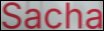
Sacha